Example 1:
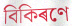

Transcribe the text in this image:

বিকিৰণে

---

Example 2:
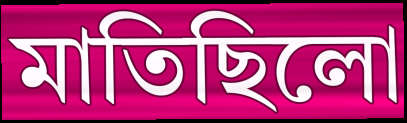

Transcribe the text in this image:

মাতিছিলো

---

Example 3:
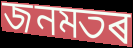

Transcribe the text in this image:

জনমতৰ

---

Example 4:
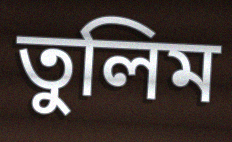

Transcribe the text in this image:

তুলিম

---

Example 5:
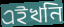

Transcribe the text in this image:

এইখনি